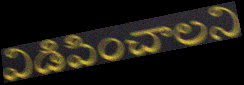
విడిపించాలని